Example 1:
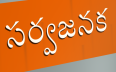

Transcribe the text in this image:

సర్వజనక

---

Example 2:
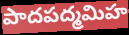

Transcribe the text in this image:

పాదపద్మమిహ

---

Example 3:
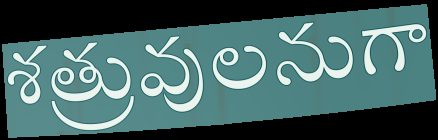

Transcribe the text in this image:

శత్రువులనుగా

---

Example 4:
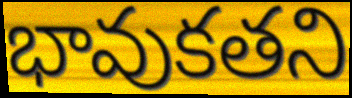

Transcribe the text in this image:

భావుకతని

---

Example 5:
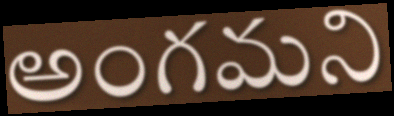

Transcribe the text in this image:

అంగమని